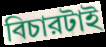
বিচারটাই